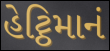
હેટ્ઠિમાનં